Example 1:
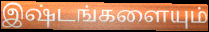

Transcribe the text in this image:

இஷ்டங்களையும்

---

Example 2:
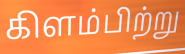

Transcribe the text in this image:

கிளம்பிற்று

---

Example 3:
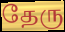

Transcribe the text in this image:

தேரு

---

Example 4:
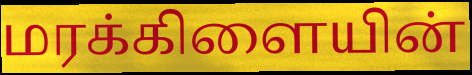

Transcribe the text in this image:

மரக்கிளையின்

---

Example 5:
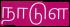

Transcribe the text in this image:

நாடுள